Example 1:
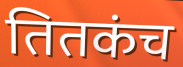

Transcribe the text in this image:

तितकंच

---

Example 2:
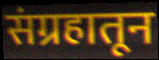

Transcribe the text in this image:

संग्रहातून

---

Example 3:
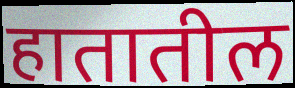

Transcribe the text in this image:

हातातील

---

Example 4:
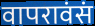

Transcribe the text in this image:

वापरावंसं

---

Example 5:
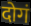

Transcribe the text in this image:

दोगं